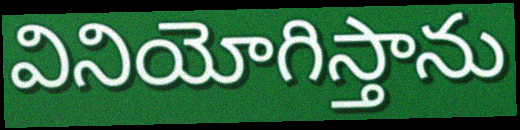
వినియోగిస్తాను